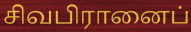
சிவபிரானைப்